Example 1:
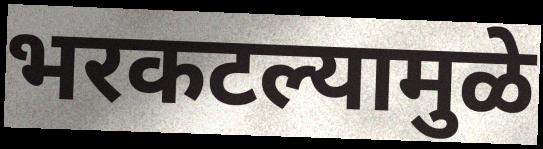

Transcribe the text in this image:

भरकटल्यामुळे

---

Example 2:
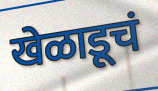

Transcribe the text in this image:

खेळाडूचं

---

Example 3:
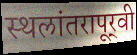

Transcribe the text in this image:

स्थलांतरापूर्वी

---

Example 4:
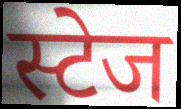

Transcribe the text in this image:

स्टेज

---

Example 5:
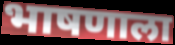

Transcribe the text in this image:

भाषणाला